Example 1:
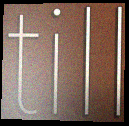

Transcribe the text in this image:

till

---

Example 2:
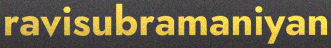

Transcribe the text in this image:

ravisubramaniyan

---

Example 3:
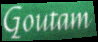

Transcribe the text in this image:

Goutam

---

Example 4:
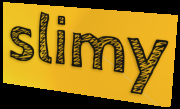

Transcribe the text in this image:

slimy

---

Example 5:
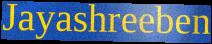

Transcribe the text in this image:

Jayashreeben